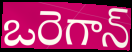
ఒరెగాన్